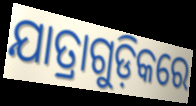
ଯାତ୍ରାଗୁଡ଼ିକରେ